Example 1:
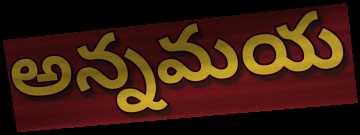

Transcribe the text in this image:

అన్నమయ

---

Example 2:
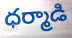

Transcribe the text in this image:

ధర్మాడి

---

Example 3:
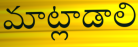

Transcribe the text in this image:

మాట్లాడాలి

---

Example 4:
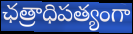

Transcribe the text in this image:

ఛత్రాధిపత్యంగా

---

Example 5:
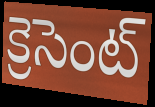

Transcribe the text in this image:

క్రెసెంట్